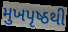
મુખપૃષ્ઠથી